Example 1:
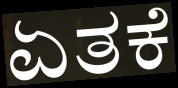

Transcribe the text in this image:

ಏತಕೆ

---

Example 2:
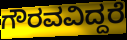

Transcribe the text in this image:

ಗೌರವವಿದ್ದರೆ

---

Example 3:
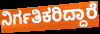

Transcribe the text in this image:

ನಿರ್ಗತಿಕರಿದ್ದಾರೆ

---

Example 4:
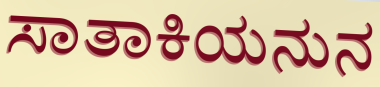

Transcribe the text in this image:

ಸಾತಾಕಿಯನುನ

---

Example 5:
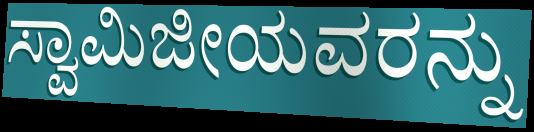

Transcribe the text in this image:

ಸ್ವಾಮಿಜೀಯವರನ್ನು